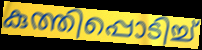
കുത്തിപ്പൊടിച്ച്